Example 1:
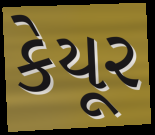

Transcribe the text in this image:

કેયૂર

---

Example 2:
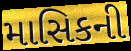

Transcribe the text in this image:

માસિકની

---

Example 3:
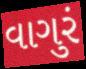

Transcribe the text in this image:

વાગુરં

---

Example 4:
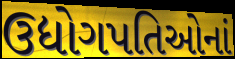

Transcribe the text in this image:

ઉદ્યોગપતિઓનાં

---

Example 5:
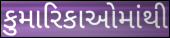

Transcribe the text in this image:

કુમારિકાઓમાંથી